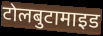
टोलबुटामाइड